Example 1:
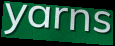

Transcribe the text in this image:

yarns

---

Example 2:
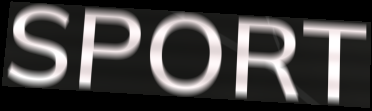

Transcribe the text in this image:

SPORT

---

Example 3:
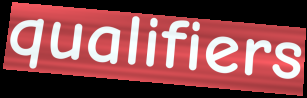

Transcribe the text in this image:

qualifiers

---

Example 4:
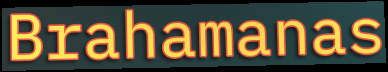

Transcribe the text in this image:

Brahamanas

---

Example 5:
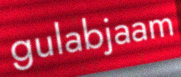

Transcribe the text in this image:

gulabjaam